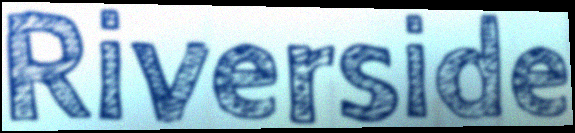
Riverside